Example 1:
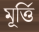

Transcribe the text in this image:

মূৰ্ত্তি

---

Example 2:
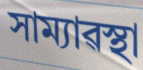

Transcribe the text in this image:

সাম্যাৱস্থা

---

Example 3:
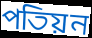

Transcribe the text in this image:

পতিয়ন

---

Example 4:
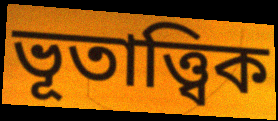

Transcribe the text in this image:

ভূতাত্ত্বিক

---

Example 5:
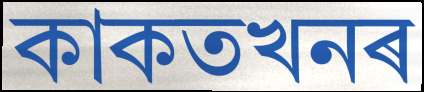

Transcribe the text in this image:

কাকতখনৰ